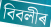
বিবলীৰ